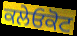
ਕਲੇਓਕੋਟ